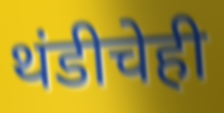
थंडीचेही